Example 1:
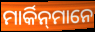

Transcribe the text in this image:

ମାର୍କିନ୍‌ମାନେ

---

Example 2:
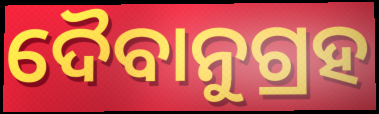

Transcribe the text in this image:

ଦୈବାନୁଗ୍ରହ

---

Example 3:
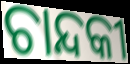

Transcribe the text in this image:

ଚାନ୍ଦକୀ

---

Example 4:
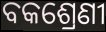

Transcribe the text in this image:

ବକଶ୍ରେଣୀ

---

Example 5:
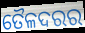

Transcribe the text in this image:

ତୈଳଦରର